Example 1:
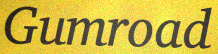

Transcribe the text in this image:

Gumroad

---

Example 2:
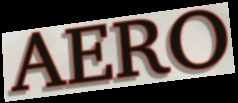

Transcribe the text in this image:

AERO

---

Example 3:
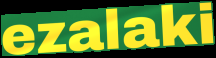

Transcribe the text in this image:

ezalaki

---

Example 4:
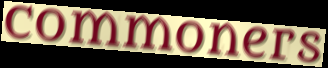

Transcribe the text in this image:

commoners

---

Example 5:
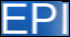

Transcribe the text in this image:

EPI